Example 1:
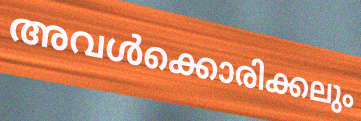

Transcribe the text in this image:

അവൾക്കൊരിക്കലും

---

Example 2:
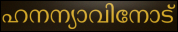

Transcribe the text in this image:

ഹനന്യാവിനോട്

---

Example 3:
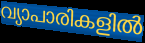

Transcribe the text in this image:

വ്യാപാരികളിൽ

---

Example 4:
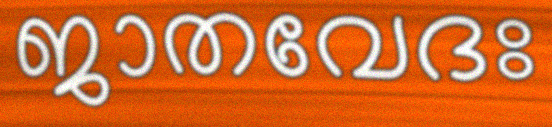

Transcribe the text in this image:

ജാതവേദഃ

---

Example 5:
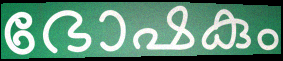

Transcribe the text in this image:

ഭോഷകും